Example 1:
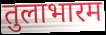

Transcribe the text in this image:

तुलाभारम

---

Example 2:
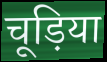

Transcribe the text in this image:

चूड़िया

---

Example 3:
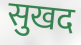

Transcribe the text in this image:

सुखद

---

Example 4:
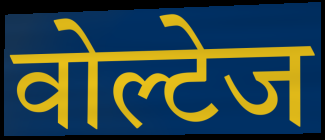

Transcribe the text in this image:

वोल्टेज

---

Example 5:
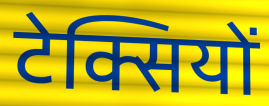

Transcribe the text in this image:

टेक्सियों